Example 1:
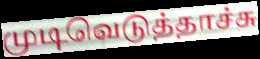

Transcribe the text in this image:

முடிவெடுத்தாச்சு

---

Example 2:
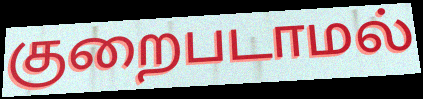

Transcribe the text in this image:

குறைபடாமல்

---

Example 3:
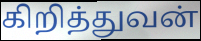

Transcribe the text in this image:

கிறித்துவன்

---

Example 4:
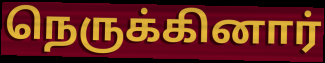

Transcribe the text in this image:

நெருக்கினார்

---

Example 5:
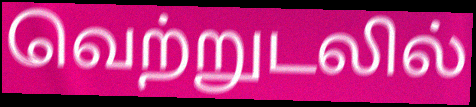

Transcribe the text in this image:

வெற்றுடலில்